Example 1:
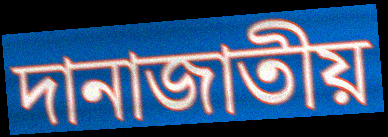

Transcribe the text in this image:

দানাজাতীয়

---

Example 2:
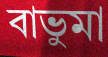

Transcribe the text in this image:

বাভুমা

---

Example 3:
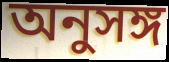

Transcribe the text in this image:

অনুসঙ্গ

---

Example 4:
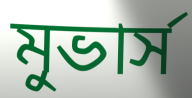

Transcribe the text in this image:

মুভার্স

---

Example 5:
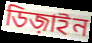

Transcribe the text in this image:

ডিজ়াইন